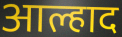
आल्हाद